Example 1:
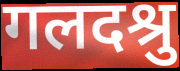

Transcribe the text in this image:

गलदश्रु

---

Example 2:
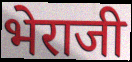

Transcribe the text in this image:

भेराजी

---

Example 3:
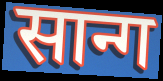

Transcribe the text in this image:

सान्ग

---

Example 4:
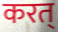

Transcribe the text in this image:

करत्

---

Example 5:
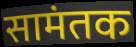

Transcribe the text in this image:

सामंतक